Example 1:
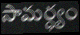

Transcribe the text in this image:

సామర్ధ్యం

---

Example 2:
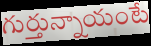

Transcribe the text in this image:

గుర్తున్నాయంటే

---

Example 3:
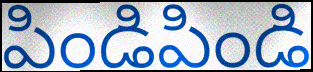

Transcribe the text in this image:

పిండిపిండి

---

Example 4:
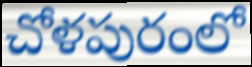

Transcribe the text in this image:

చోళపురంలో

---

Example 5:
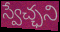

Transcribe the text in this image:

స్వేచ్ఛని